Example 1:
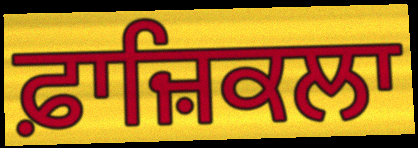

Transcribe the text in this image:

ਫ਼ਾਜ਼ਿਕਲਾ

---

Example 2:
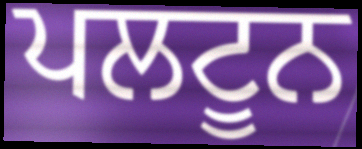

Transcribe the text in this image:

ਪਲਟੂਨ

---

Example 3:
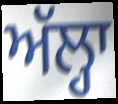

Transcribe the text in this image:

ਅੱਲ੍ਹਾ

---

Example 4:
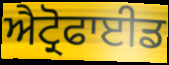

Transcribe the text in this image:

ਐਟ੍ਰੋਫਾਈਡ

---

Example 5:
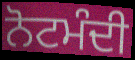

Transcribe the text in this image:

ਨੋਟਮੰਦੀ